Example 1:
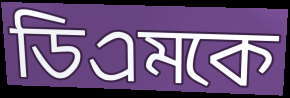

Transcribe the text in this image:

ডিএমকে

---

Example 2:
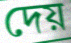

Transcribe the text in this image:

দেয়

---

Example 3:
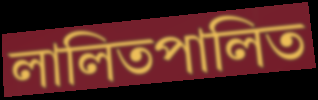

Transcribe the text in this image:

লালিতপালিত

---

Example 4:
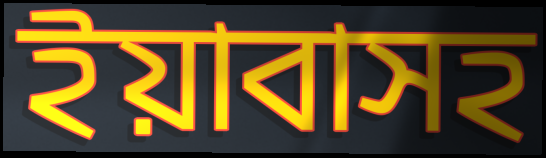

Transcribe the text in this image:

ইয়াবাসহ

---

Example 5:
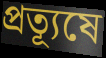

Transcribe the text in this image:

প্রত্যূষে